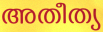
അതീത്യ